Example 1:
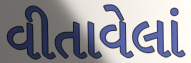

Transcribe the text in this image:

વીતાવેલાં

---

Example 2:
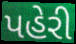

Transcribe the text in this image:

પહેરી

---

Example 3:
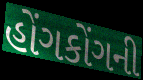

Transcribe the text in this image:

હોંગકોંગની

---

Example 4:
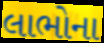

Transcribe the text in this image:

લાભોના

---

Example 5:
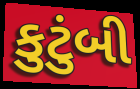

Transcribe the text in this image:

કુટુંબી